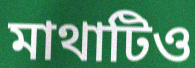
মাথাটিও